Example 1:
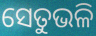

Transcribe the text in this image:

ସେତୁଭଳି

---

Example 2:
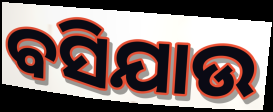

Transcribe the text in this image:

ବସିଯାଉ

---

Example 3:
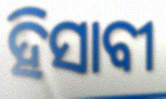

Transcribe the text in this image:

ହିସାବୀ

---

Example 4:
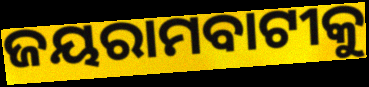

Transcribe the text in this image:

ଜୟରାମବାଟୀକୁ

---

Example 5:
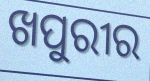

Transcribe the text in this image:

ଖପୁରୀର